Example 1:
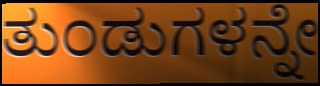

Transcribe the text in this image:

ತುಂಡುಗಳನ್ನೇ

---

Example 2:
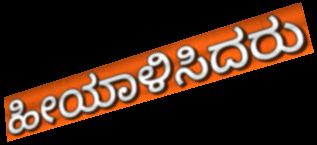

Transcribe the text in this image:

ಹೀಯಾಳಿಸಿದರು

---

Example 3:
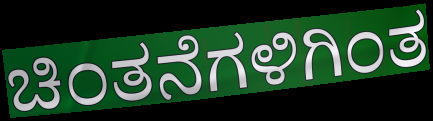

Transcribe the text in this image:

ಚಿಂತನೆಗಳಿಗಿಂತ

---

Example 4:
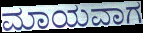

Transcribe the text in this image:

ಮಾಯವಾಗ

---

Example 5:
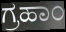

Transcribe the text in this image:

ಗ್ರಹಾಂ